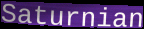
Saturnian